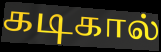
கடிகால்